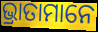
ଭ୍ରାତାମାନେ